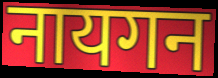
नायगन